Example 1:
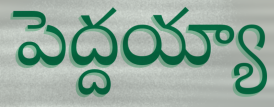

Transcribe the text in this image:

పెద్దయ్యా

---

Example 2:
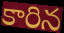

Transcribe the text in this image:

కారిన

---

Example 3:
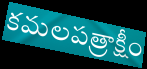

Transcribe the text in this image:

కమలపత్రాక్షీం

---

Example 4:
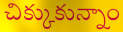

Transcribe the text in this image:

చిక్కుకున్నాం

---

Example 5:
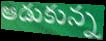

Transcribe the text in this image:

ఆడుకున్న